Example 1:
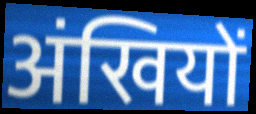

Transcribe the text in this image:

अंखियों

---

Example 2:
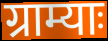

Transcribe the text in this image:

ग्राम्याः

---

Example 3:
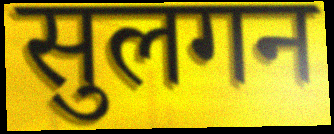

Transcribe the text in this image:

सुलगन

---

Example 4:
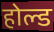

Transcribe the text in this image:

होल्ड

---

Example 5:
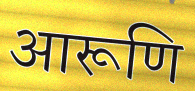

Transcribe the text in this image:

आरूणि